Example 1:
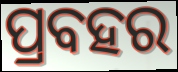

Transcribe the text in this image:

ପ୍ରବହର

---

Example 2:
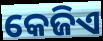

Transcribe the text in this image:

କେଜିଏ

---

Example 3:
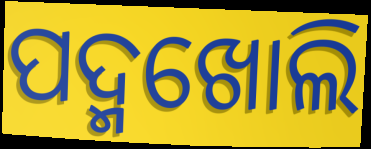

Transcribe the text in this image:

ପଦ୍ମଖୋଲି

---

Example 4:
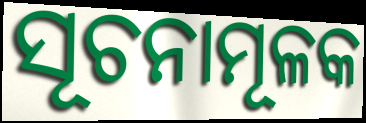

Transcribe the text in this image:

ସୂଚନାମୂଳକ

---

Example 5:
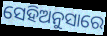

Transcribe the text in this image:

ସେହିଅନୁସାରେ